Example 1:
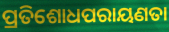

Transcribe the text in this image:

ପ୍ରତିଶୋଧପରାୟଣତା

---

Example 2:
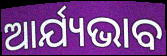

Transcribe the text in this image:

ଆର୍ଯ୍ୟଭାବ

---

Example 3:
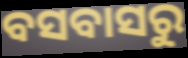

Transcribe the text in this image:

ବସବାସରୁ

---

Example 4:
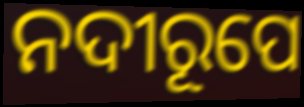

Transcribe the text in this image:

ନଦୀରୂପେ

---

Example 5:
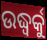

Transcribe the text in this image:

ଉଦ୍ଧ୍ୱର୍କୁ